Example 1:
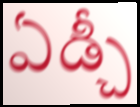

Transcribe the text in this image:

ఏడ్చీ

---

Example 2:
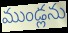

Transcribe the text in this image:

ముండ్లను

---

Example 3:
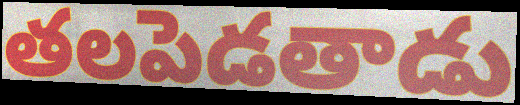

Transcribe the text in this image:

తలపెడతాడు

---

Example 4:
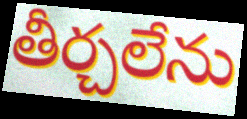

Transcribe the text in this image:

తీర్చలేను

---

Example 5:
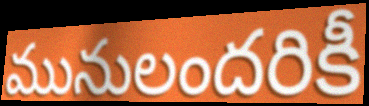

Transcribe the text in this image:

మునులందరికీ